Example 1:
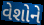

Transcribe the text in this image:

વેશોને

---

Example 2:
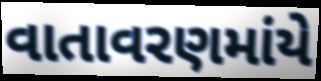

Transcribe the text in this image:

વાતાવરણમાંયે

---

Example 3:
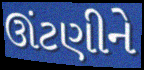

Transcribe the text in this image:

ઊંટણીને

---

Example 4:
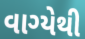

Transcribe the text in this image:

વાગ્યેથી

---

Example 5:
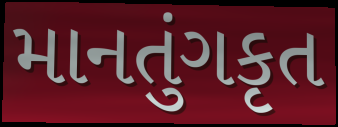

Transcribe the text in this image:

માનતુંગકૃત